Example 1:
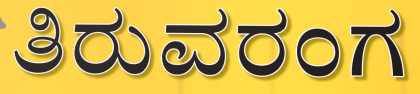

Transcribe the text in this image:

ತಿರುವರಂಗ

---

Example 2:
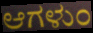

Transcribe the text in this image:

ಆಗಳುಂ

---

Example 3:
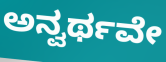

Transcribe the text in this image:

ಅನ್ವರ್ಥವೇ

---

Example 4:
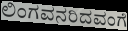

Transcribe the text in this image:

ಲಿಂಗವನರಿದವಂಗೆ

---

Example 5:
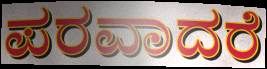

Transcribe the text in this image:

ಪರವಾದರೆ